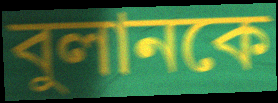
বুলানকে